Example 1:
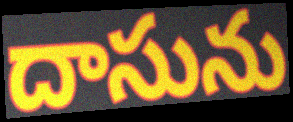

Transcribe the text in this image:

దాసును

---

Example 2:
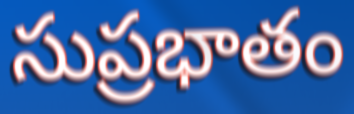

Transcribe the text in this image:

సుప్రభాతం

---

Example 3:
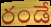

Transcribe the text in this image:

రండే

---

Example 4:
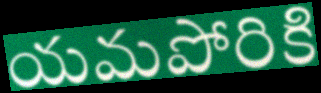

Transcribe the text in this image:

యమపోరికి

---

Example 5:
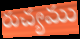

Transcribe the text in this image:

రుచ్యము